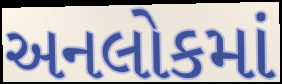
અનલોકમાં